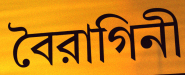
বৈরাগিনী